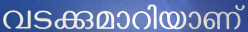
വടക്കുമാറിയാണ്